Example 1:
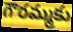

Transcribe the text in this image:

గౌరమ్మకు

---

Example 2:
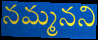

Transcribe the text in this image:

నమ్మనని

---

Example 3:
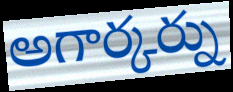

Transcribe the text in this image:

అగార్కర్ను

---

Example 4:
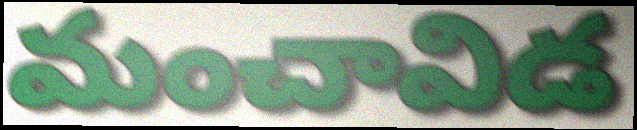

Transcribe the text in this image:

మంచావిడ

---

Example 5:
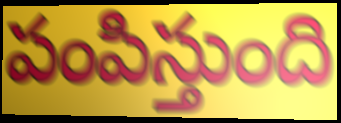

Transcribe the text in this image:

పంపిస్తుంది